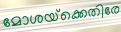
മോശയ്‌ക്കെതിരേ